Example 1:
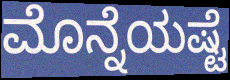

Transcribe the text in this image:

ಮೊನ್ನೆಯಷ್ಟೆ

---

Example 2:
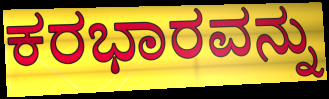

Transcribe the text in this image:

ಕರಭಾರವನ್ನು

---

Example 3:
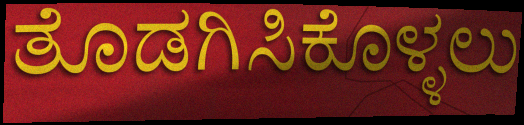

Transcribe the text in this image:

ತೊಡಗಿಸಿಕೊಳ್ಳಲು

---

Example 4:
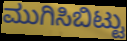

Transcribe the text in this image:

ಮುಗಿಸಿಬಿಟ್ಟು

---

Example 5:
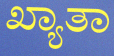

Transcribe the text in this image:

ಖ್ಯಾತಾ